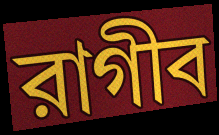
রাগীব